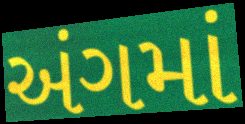
અંગમાં